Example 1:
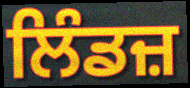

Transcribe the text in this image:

ਲਿੰਡਜ਼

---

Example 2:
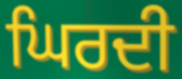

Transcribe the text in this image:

ਘਿਰਦੀ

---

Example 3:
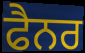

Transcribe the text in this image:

ਫੈਨਰ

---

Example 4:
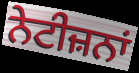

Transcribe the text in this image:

ਨੇਟੀਜ਼ਨਾਂ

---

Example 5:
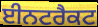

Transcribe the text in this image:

ਈਨਟਰੈਕਟ